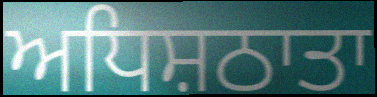
ਅਧਿਸ਼ਠਾਤਾ